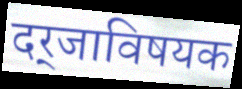
दर्जाविषयक